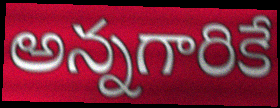
అన్నగారికే